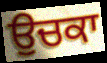
ਉਚਕਾ